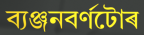
ব্যঞ্জনবৰ্ণটোৰ